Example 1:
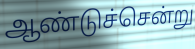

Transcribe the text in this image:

ஆண்டுச்சென்று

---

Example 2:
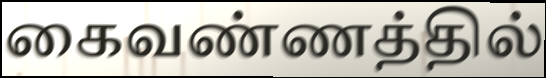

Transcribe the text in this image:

கைவண்ணத்தில்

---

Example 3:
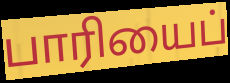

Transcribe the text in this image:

பாரியைப்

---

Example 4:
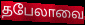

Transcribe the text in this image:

தபேலாவை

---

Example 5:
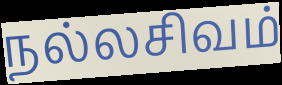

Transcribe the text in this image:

நல்லசிவம்